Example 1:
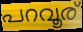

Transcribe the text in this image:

പറവൂര്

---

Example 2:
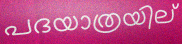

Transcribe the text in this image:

പദയാത്രയില്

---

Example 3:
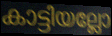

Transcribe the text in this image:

കാട്ടിയല്ലോ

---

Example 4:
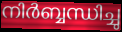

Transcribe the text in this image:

നിർബ്ബന്ധിച്ചു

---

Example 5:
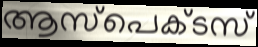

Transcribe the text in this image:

ആസ്പെക്ടസ്